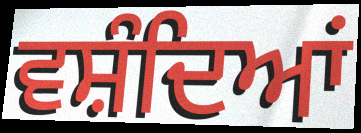
ਵਸ਼ੰਦਿਆਂ